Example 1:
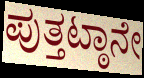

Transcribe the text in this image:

ಪುತ್ತಟ್ಠಾನೇ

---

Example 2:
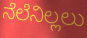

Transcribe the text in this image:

ನೆಲೆನಿಲ್ಲಲು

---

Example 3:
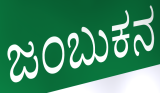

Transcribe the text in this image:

ಜಂಬುಕನ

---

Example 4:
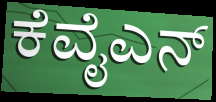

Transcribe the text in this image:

ಕೆವೈಎನ್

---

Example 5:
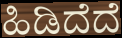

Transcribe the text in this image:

ಹಿಡಿದೆದೆ